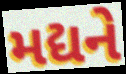
મદ્યને